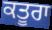
ਕਤੂਰਾ